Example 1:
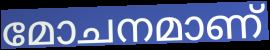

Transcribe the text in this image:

മോചനമാണ്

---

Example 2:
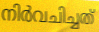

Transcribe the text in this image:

നിർവചിച്ചത്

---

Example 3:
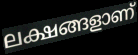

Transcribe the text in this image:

ലക്ഷങ്ങളാണ്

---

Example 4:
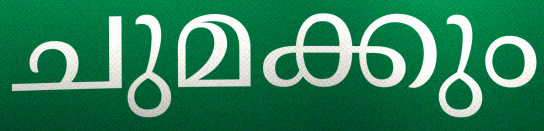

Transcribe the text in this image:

ചുമക്കും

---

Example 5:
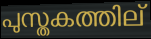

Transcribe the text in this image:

പുസ്തകത്തില്